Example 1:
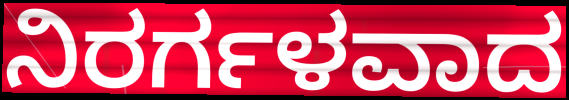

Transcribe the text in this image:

ನಿರರ್ಗಳವಾದ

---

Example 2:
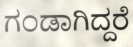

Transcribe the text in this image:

ಗಂಡಾಗಿದ್ದರೆ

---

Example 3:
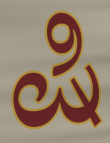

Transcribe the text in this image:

ಷಿ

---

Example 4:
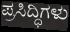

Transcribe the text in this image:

ಪ್ರಸಿದ್ಧಿಗಳು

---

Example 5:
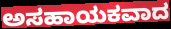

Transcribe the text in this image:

ಅಸಹಾಯಕವಾದ